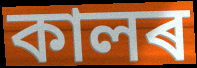
কালৰ